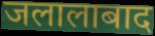
जलालाबाद